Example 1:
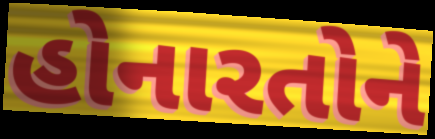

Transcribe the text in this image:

હોનારતોને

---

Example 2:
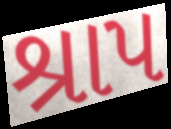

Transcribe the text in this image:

શ્રાપ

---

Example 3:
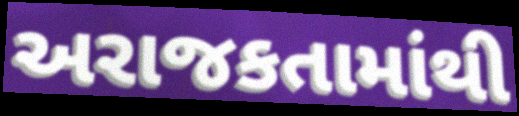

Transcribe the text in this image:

અરાજકતામાંથી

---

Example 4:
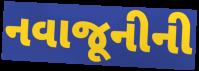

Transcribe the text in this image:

નવાજૂનીની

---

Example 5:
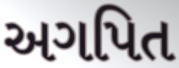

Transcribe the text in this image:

અગપિત